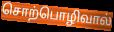
சொற்பொழிவால்